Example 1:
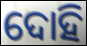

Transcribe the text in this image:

ଦୋହି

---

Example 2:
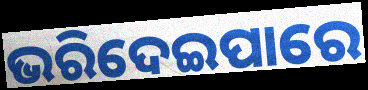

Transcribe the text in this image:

ଭରିଦେଇପାରେ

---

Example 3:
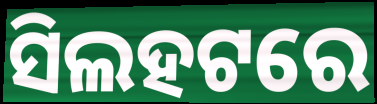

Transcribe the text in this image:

ସିଲହଟରେ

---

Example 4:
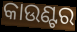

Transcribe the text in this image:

କାଉଣ୍ଟର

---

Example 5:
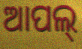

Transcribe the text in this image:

ଆପଲ୍